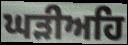
ਘੜੀਅਹਿ